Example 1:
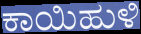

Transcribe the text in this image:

ಕಾಯಿಹುಳಿ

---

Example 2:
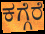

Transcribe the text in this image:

ಕಗ್ಗೆರೆ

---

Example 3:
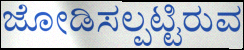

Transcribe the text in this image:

ಜೋಡಿಸಲ್ಪಟ್ಟಿರುವ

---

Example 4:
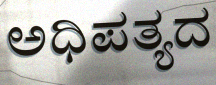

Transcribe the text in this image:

ಅಧಿಪತ್ಯದ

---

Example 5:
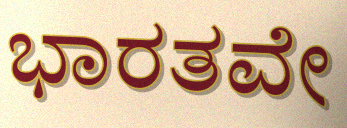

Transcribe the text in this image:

ಭಾರತವೇ